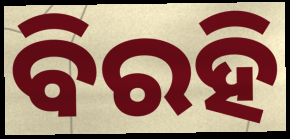
ବିରହି